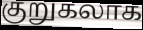
குறுகலாக